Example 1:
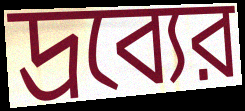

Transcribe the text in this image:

দ্রব্যের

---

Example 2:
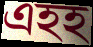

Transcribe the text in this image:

এহহ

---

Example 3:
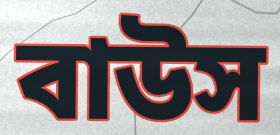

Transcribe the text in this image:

বাউস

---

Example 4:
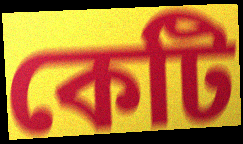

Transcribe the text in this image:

কেটি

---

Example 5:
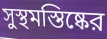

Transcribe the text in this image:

সুস্থমস্তিষ্কের